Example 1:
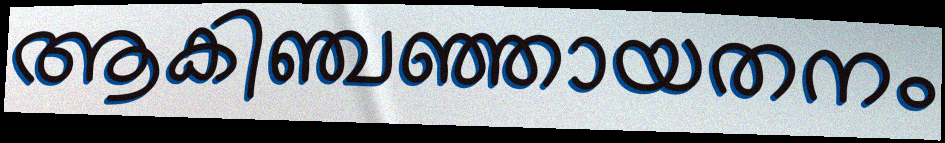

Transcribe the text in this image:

ആകിഞ്ചഞ്ഞായതനം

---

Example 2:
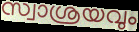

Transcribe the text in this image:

സ്വാശ്രയവും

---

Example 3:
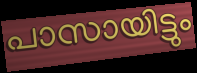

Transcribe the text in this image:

പാസായിട്ടും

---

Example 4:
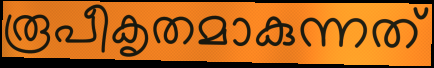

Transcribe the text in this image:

രൂപീകൃതമാകുന്നത്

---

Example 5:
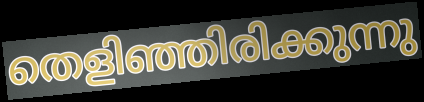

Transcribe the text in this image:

തെളിഞ്ഞിരിക്കുന്നു